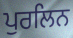
ਪੁਰਲਿਨ